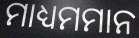
ମାଧ୍ୟମମାନ